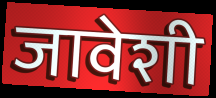
जावेशी